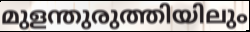
മുളന്തുരുത്തിയിലും